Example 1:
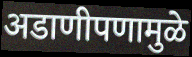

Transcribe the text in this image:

अडाणीपणामुळे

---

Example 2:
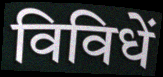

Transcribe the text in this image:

विविधें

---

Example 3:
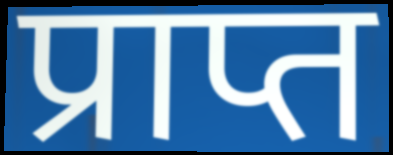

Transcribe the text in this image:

प्राप्‍त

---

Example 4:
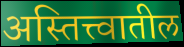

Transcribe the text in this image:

अस्तित्त्वातील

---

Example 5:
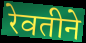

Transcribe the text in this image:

रेवतीने